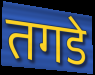
तगडे